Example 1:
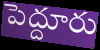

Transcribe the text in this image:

పెద్దూరు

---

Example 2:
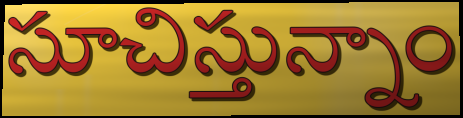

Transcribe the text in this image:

సూచిస్తున్నాం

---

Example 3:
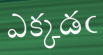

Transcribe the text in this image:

ఎక్కడఁ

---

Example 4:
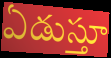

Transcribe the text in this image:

ఏడుస్తూ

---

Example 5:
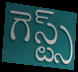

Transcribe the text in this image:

గెస్ట్స్